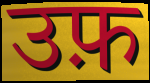
उफ़